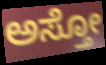
ಅಸ್ತೋ